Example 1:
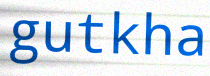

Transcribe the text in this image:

gutkha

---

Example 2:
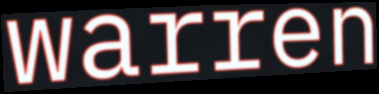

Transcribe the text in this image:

warren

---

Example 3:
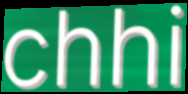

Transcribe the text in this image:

chhi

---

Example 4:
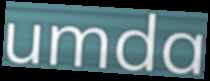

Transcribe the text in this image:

umda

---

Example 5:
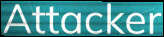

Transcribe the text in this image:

Attacker